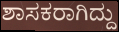
ಶಾಸಕರಾಗಿದ್ದು